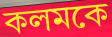
কলমকে